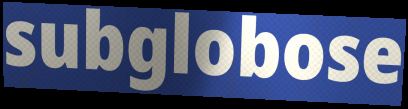
subglobose